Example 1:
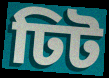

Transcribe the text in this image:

ঢিট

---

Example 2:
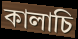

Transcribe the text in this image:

কালাচি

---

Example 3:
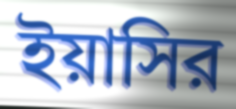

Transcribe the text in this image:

ইয়াসির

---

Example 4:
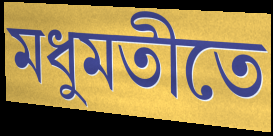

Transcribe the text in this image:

মধুমতীতে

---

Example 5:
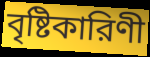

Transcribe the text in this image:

বৃষ্টিকারিণী